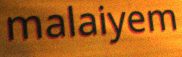
malaiyem